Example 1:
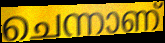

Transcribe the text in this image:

ചെന്നാണ്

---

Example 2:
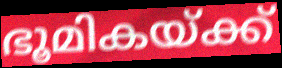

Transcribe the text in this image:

ഭൂമികയ്ക്ക്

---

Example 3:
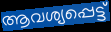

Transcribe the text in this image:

ആവശ്യപ്പെട്ട്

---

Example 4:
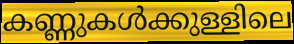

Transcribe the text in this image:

കണ്ണുകൾക്കുള്ളിലെ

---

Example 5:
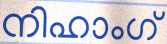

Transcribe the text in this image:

നിഹാംഗ്